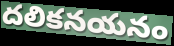
దలికనయనం